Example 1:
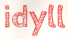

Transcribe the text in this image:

idyll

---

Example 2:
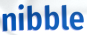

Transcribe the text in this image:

nibble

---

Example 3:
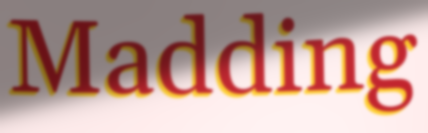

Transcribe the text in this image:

Madding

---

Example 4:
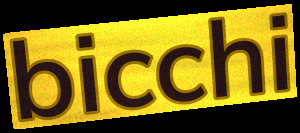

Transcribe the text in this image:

bicchi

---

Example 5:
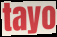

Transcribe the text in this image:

tayo